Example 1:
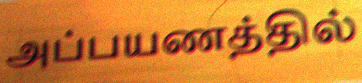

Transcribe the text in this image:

அப்பயணத்தில்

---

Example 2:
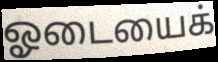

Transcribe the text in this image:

ஓடையைக்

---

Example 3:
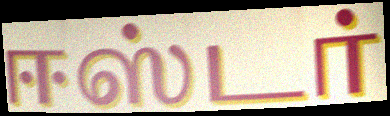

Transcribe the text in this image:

ஈஸ்டர்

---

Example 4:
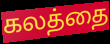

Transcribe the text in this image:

கலத்தை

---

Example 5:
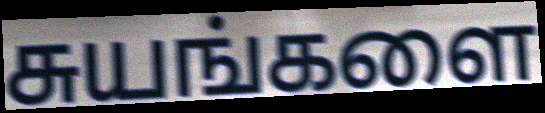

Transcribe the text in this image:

சுயங்களை